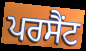
ਪਰਸੈਂਟ